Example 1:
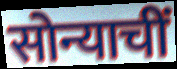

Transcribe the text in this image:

सोन्याचीं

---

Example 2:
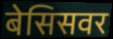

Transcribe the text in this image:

बेसिसवर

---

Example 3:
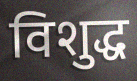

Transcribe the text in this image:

विशुद्ध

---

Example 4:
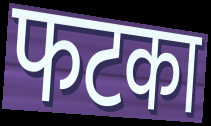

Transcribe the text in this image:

फटका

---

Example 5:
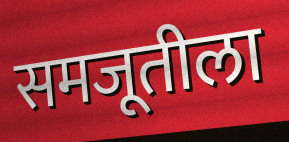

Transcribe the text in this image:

समजूतीला